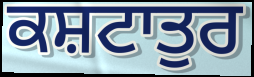
ਕਸ਼ਟਾਤੁਰ